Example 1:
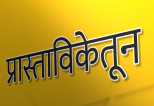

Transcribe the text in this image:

प्रास्ताविकेतून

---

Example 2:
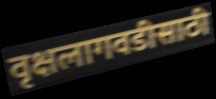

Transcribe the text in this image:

वृक्षलागवडीसाठी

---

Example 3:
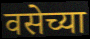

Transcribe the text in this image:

वसेच्या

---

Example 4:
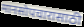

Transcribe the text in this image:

मानसोपचारासाठी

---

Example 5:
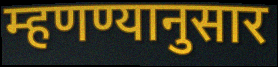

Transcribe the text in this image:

म्हणण्यानुसार